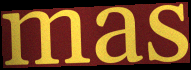
mas